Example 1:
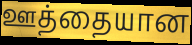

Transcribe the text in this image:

ஊத்தையான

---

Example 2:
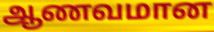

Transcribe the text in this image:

ஆணவமான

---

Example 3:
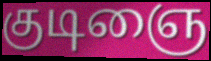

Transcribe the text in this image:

குடிஞை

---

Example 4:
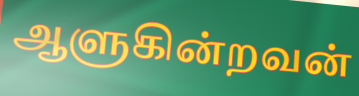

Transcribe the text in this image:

ஆளுகின்றவன்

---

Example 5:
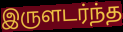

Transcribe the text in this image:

இருளடர்ந்த